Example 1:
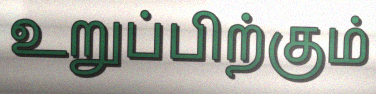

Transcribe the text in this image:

உறுப்பிற்கும்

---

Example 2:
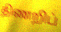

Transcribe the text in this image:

திணறிப்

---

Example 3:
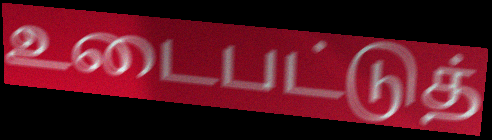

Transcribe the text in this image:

உடைபட்டுத்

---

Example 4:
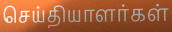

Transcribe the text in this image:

செய்தியாளர்கள்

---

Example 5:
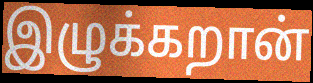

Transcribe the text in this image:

இழுக்கறான்